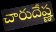
చారుదేష్ణ